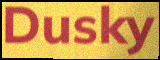
Dusky